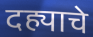
दह्याचे